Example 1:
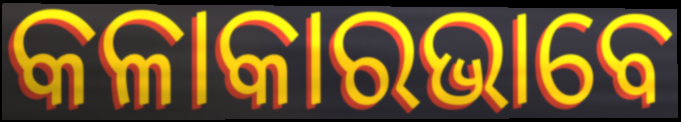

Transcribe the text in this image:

କଳାକାରଭାବେ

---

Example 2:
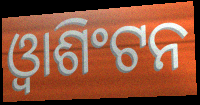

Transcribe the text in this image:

ଓ୍ୱାଶିଂଟନ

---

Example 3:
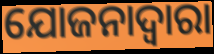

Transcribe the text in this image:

ଯୋଜନାଦ୍ୱାରା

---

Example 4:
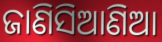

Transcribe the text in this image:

ଜାଣିସିଆଣିଆ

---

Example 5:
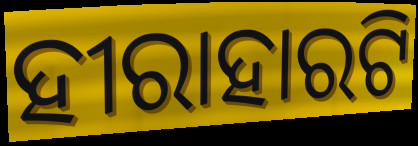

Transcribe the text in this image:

ହୀରାହାରଟି